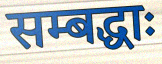
सम्बद्धाः